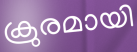
ക്രുരമായി